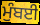
ਮੁੰਬਈ